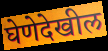
घेणेदेखील